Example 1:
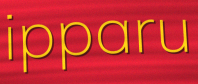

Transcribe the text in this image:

ipparu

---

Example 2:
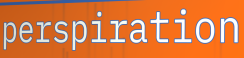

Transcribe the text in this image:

perspiration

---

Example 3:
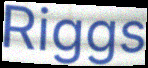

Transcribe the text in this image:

Riggs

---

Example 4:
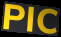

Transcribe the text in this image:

PIC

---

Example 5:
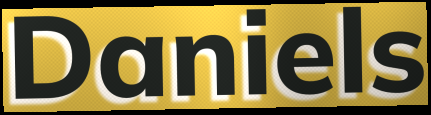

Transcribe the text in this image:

Daniels